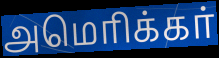
அமெரிக்கர்